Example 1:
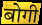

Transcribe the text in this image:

बोगी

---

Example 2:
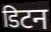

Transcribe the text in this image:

डिटन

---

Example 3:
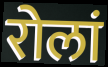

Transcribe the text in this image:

रोलां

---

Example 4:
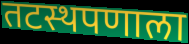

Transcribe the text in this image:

तटस्थपणाला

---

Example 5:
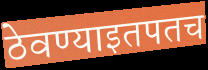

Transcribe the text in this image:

ठेवण्याइतपतच